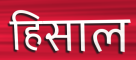
हिसाल